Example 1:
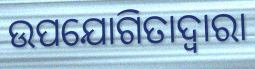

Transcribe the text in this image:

ଉପଯୋଗିତାଦ୍ୱାରା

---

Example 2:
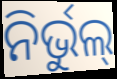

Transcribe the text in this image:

ନିର୍ଭୁଲ୍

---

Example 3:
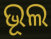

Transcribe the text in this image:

ଭୂଲ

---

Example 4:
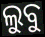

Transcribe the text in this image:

ଲୁବୁ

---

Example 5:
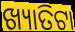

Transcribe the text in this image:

ଖ୍ୟାତିଟା